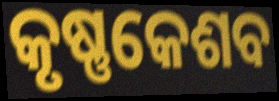
କୃଷ୍ଣକେଶବ